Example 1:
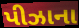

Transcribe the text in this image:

પીઝાના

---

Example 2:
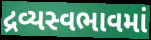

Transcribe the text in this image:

દ્રવ્યસ્વભાવમાં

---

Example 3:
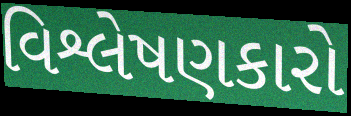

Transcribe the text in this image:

વિશ્લેષણકારો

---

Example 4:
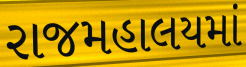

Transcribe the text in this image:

રાજમહાલયમાં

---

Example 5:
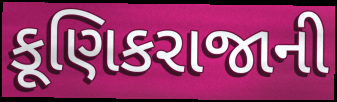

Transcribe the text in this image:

કૂણિકરાજાની